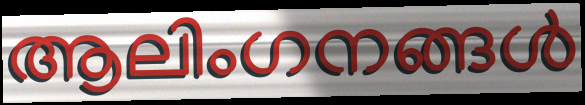
ആലിംഗനങ്ങൾ